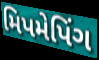
મિપમેપિંગ